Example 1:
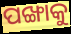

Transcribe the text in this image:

ପଙ୍ଖାକୁ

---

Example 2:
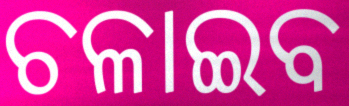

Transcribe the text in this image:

ଚଳାଇବ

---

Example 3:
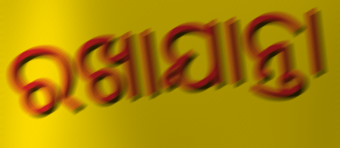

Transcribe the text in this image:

ରଖାଯାନ୍ତା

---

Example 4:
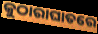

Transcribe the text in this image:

କୁଠାରାଘାତରେ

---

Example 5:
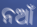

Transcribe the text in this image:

ନଆଁ